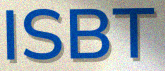
ISBT